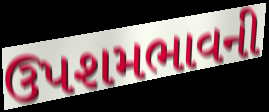
ઉપશમભાવની